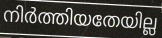
നിർത്തിയതേയില്ല